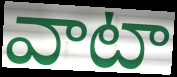
వాటా